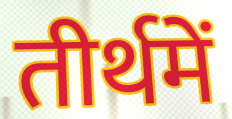
तीर्थमें